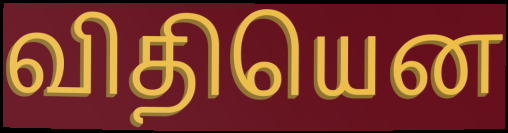
விதியென